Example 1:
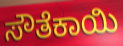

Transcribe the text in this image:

ಸೌತೆಕಾಯಿ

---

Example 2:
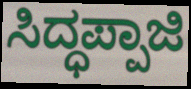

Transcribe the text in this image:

ಸಿದ್ಧಪ್ಪಾಜಿ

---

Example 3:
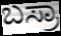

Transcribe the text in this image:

ಬಸ್ರಾ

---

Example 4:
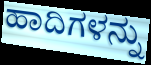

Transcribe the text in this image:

ಹಾದಿಗಳನ್ನು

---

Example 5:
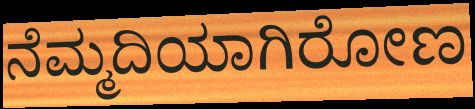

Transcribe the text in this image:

ನೆಮ್ಮದಿಯಾಗಿರೋಣ